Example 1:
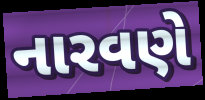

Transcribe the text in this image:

નારવણે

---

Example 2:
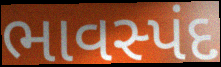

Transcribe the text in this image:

ભાવસ્પંદ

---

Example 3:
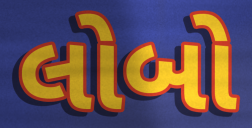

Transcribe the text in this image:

લોબો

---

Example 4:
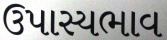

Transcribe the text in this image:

ઉપાસ્યભાવ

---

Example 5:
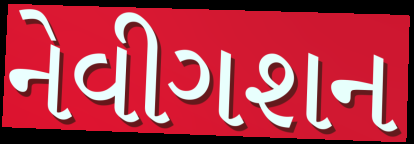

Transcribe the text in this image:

નેવીગશન